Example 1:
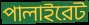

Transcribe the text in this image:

পালাইরেট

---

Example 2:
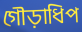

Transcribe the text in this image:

গৌড়াধিপ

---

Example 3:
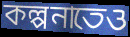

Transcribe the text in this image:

কল্পনাতেও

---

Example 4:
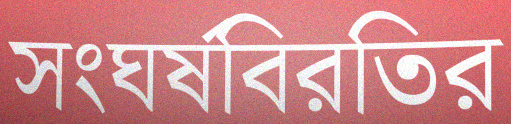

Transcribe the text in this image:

সংঘর্ষবিরতির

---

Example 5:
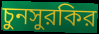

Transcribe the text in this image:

চুনসুরকির